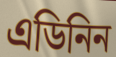
এডিনিন